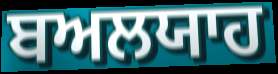
ਬਅਲਯਾਹ